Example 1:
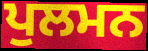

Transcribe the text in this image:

ਪੁਲਮਨ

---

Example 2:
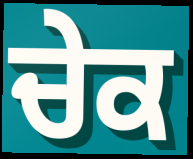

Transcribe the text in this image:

ਚੇਕ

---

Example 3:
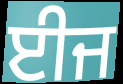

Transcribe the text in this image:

ਈਜ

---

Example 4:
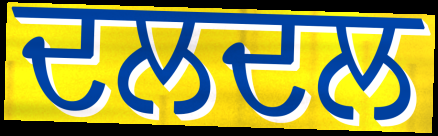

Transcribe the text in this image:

ਦਲਦਲ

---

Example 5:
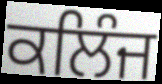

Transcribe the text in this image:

ਕਲਿੰਜ